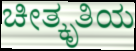
ಚೀತ್ಕೃತಿಯ